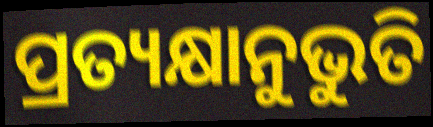
ପ୍ରତ୍ୟକ୍ଷାନୁଭୁତି